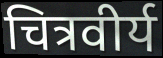
चित्रवीर्य